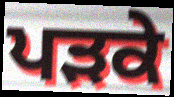
ਪੜਕੇ